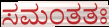
ಸಮಂತತಃ